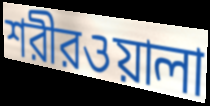
শরীরওয়ালা